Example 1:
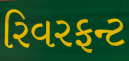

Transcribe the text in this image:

રિવરફન્ટ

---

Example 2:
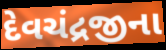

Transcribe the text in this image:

દેવચંદ્રજીના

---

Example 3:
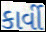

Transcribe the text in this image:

કાર્વી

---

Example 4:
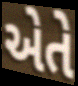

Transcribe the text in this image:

એતે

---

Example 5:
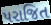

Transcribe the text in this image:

પરાજિત